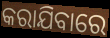
କରାଯିବାରେ